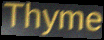
Thyme